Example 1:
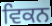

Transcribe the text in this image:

ਵਿਕਨ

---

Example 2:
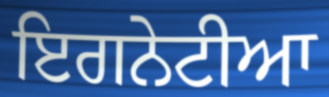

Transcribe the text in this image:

ਇਗਨੇਟੀਆ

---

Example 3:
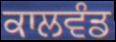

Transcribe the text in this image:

ਕਾਲਵੰਡ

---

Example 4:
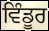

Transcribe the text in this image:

ਵਿੰਡੂਰ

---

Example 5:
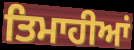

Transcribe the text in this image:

ਤਿਮਾਹੀਆਂ